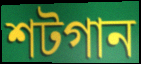
শটগান